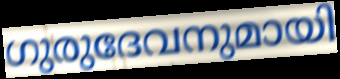
ഗുരുദേവനുമായി